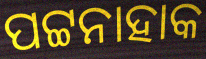
ପଟ୍ଟନାହାକ